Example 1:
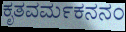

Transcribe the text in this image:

ಕೃತವರ್ಮಕನನಂ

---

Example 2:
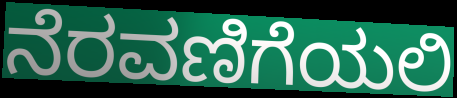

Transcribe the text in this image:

ನೆರವಣಿಗೆಯಲಿ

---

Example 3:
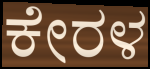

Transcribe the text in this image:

ಕೇರಳ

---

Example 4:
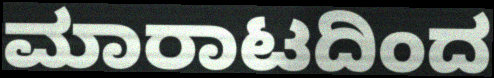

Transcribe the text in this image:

ಮಾರಾಟದಿಂದ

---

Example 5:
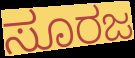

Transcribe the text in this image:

ಸೂರಜ